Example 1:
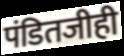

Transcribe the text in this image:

पंडितजीही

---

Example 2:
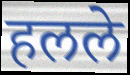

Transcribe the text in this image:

हलले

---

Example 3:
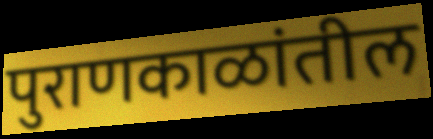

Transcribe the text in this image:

पुराणकाळांतील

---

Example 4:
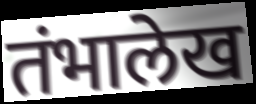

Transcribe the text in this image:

तंभालेख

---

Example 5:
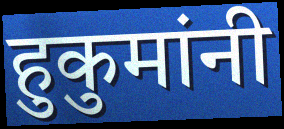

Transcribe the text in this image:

हुकुमांनी